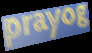
prayog